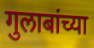
गुलाबांच्या